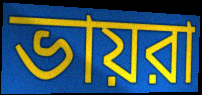
ভায়রা